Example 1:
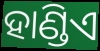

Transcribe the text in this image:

ହାଣ୍ଡିଏ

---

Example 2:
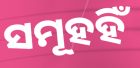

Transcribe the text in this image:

ସମୂହହିଁ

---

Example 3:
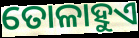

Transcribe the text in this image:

ତୋଳାହୁଏ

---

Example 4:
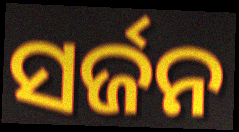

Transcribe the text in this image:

ସର୍ଜନ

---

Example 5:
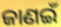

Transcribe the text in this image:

ଜାଣଇଁ